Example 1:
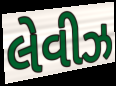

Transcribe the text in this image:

લેવીઝ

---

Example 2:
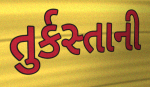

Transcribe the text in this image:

તુર્કસ્તાની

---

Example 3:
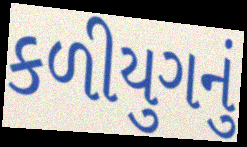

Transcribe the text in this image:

કળીયુગનું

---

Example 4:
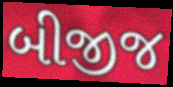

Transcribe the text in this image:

બીજીજ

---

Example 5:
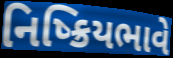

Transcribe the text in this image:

નિષ્ક્રિયભાવે